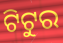
ଟିଟୁର